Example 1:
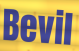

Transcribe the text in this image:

Bevil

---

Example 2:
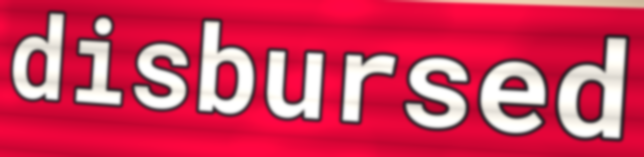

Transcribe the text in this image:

disbursed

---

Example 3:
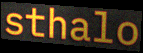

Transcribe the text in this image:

sthalo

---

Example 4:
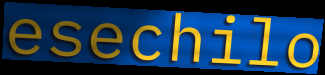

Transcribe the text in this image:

esechilo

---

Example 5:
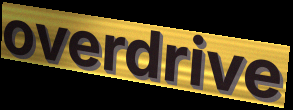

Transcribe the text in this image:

overdrive